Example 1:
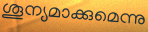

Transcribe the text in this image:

ശൂന്യമാക്കുമെന്നു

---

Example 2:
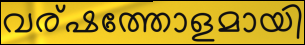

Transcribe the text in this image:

വര്ഷത്തോളമായി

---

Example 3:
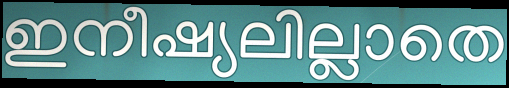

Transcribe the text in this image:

ഇനീഷ്യലില്ലാതെ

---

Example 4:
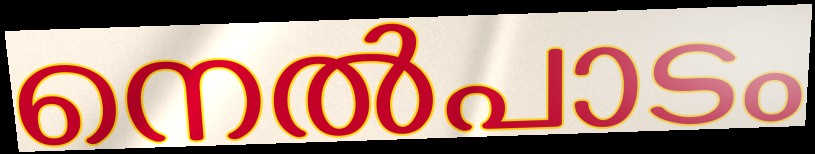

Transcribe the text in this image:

നെൽപാടം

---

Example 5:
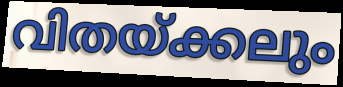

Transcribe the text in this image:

വിതയ്ക്കലും